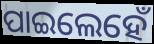
ପାଇଲେହେଁ